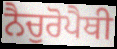
ਨੈਚੁਰੋਪੈਥੀ